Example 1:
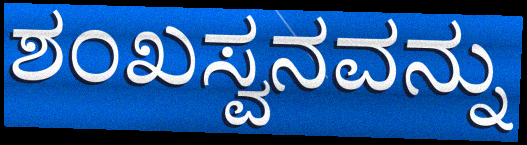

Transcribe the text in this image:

ಶಂಖಸ್ವನವನ್ನು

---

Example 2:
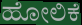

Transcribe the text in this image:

ಹೋಲಿಕೆ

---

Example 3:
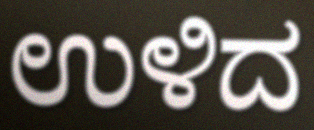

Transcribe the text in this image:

ಉಳಿದ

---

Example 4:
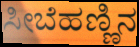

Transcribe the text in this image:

ಸೀಬೆಹಣ್ಣಿನ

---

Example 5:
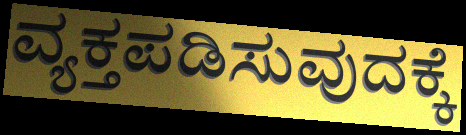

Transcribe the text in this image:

ವ್ಯಕ್ತಪಡಿಸುವುದಕ್ಕೆ